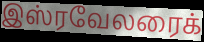
இஸ்ரவேலரைக்